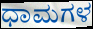
ಧಾಮಗಳ